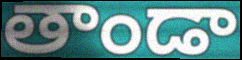
తాండా